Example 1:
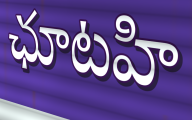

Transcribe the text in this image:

ఛూటహి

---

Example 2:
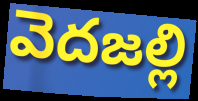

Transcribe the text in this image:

వెదజల్లి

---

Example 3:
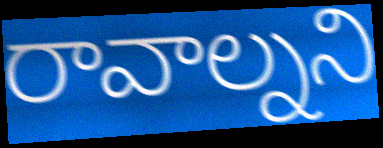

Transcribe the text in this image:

రావాల్నని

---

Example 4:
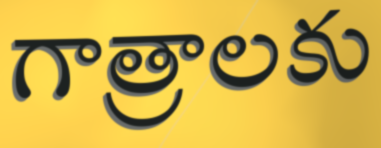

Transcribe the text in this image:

గాత్రాలకు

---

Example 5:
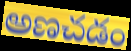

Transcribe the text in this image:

అణచడం